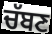
ਚੱਬਣ